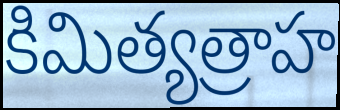
కిమిత్యత్రాహ